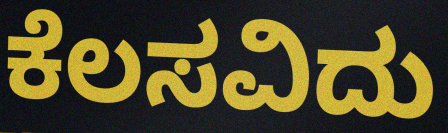
ಕೆಲಸವಿದು